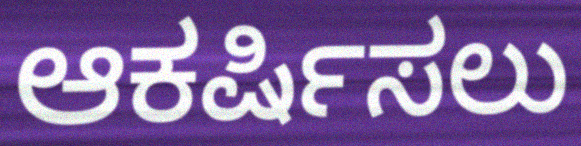
ಆಕರ್ಷಿಸಲು